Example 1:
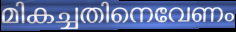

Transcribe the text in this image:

മികച്ചതിനെവേണം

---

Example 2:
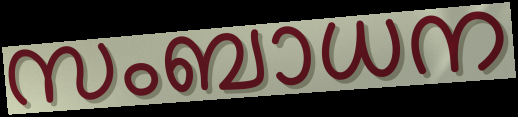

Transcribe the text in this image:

സംബാധന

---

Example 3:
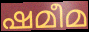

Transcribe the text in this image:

ഷമീമ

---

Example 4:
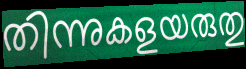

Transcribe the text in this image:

തിന്നുകളയരുതു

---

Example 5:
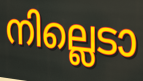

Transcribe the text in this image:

നില്ലെടാ